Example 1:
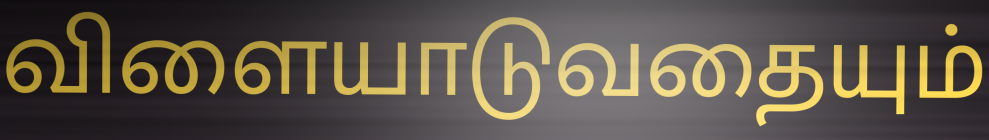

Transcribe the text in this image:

விளையாடுவதையும்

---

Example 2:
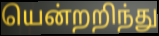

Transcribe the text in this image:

யென்றறிந்து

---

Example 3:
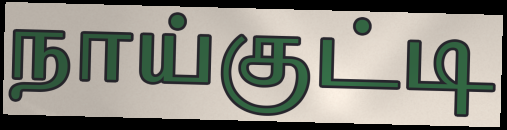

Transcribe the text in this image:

நாய்குட்டி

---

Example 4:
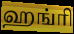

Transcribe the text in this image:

ஹங்ரி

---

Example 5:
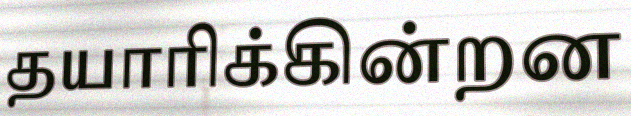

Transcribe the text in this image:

தயாரிக்கின்றன